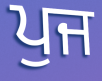
ਪੁਜ